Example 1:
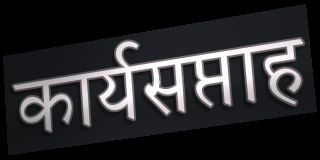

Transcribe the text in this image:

कार्यसप्ताह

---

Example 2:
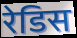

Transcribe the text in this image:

रेडिस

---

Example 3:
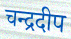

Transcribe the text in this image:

चन्द्रदीप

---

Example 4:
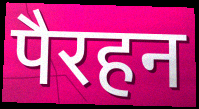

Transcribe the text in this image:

पैरहन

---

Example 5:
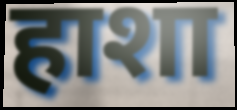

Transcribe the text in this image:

हाशा